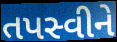
તપસ્વીને